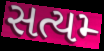
સત્યમ્‍